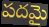
పదమై